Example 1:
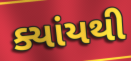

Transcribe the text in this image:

ક્યાંયથી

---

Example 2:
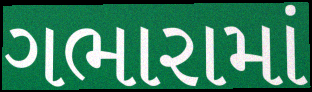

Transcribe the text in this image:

ગભારામાં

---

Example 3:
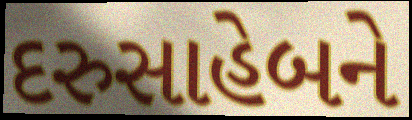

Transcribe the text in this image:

દરુસાહેબને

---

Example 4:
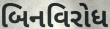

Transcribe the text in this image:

બિનવિરોધ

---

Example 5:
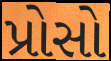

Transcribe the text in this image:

પ્રોસો